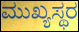
ಮುಖ್ಯಸ್ಥರ